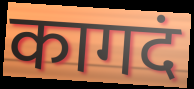
कागदं